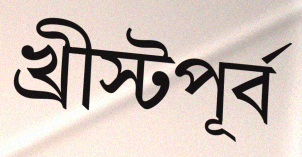
খ্রীস্টপূর্ব